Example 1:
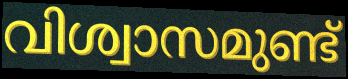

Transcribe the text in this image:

വിശ്വാസമുണ്ട്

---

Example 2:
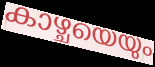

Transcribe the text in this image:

കാഴ്ചയെയും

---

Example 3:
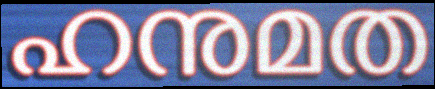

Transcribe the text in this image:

ഹനുമത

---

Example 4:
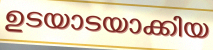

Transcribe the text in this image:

ഉടയാടയാക്കിയ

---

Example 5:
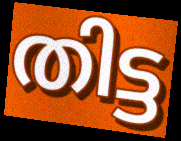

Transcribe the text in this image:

തിട്ട